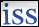
iss